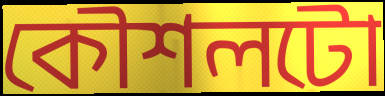
কৌশলটো